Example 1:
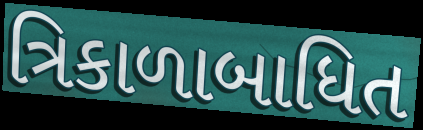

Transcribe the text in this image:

ત્રિકાળાબાધિત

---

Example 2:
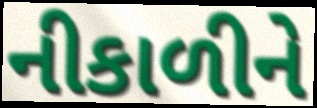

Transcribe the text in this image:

નીકાળીને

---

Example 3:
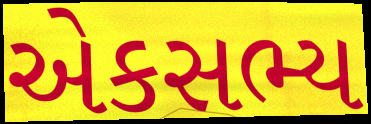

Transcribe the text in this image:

એકસભ્ય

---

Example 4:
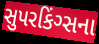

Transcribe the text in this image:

સુપરકિંગ્સના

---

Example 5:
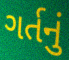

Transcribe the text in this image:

ગર્તનું